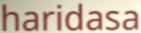
haridasa